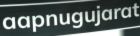
aapnugujarat